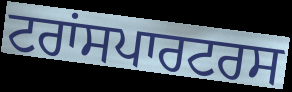
ਟਰਾਂਸਪਾਰਟਰਸ